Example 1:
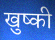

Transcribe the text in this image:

खुष्की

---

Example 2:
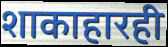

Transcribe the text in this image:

शाकाहारही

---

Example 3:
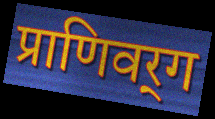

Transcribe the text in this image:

प्राणिवर्ग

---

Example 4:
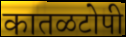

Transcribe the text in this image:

कातळटोपी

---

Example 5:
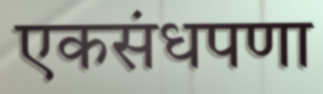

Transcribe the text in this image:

एकसंधपणा